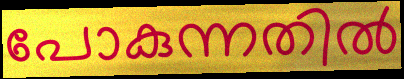
പോകുന്നതിൽ